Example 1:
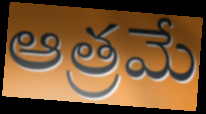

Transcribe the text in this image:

ఆత్రమే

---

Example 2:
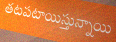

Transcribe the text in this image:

తటపటాయిస్తున్నాయి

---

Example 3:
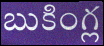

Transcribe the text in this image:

బుకింగ్ల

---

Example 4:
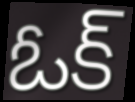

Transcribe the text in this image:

ఓక్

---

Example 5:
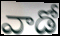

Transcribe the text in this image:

వాడో